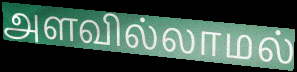
அளவில்லாமல்